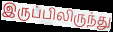
இருப்பிலிருந்து